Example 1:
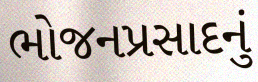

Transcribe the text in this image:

ભોજનપ્રસાદનું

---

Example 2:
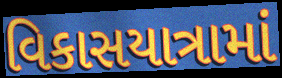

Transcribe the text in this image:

વિકાસયાત્રામાં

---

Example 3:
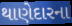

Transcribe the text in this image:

થાણેદારના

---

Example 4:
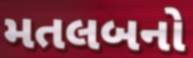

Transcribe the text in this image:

મતલબનો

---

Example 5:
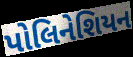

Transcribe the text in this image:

પોલિનેશિયન